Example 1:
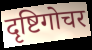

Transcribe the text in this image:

दृष्टिगोचर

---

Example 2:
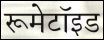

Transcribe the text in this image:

रूमेटॉइड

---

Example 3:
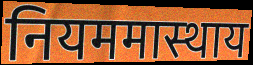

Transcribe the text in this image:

नियममास्थाय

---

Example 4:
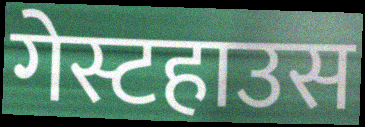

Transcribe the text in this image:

गेस्टहाउस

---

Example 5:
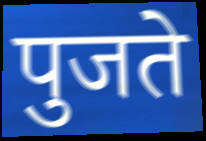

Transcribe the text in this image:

पुजते